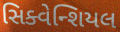
સિક્વેન્શિયલ